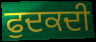
ਫੁਦਕਦੀ